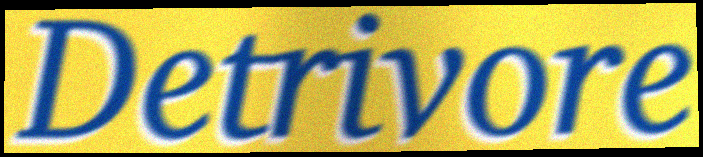
Detrivore